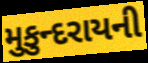
મુકુન્દરાયની